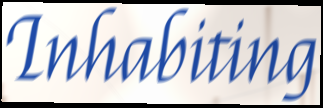
Inhabiting